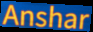
Anshar